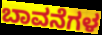
ಬಾವನೆಗಳ